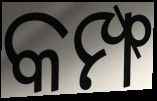
କମ୍ଫ